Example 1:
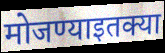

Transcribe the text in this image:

मोजण्याइतक्या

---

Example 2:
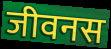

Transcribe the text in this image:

जीवनस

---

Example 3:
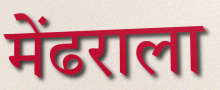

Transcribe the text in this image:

मेंढराला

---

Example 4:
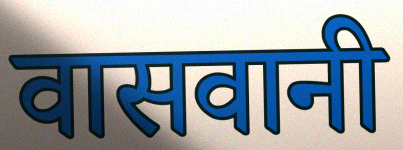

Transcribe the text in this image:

वासवानी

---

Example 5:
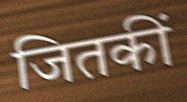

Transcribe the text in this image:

जितकीं